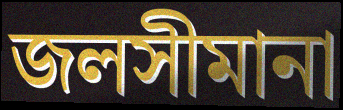
জলসীমানা